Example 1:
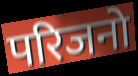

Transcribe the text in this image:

परिजनो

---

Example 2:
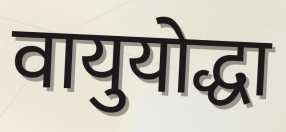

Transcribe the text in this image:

वायुयोद्धा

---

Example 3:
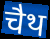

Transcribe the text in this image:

चैथ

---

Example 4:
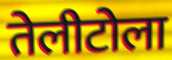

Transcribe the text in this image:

तेलीटोला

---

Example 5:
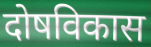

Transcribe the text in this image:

दोषविकास